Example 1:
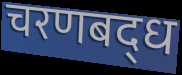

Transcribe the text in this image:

चरणबद्ध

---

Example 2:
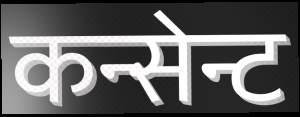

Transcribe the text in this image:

कन्सेन्ट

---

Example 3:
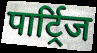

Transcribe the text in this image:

पार्ट्रिज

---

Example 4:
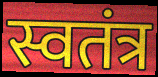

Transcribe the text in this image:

स्‍वतंत्र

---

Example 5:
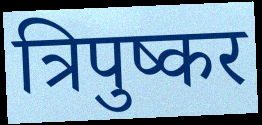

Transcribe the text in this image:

त्रिपुष्कर